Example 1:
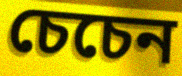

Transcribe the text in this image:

চেচেন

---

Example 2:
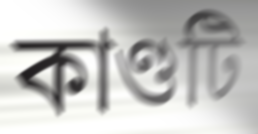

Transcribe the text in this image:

কাণ্ডটি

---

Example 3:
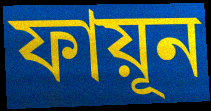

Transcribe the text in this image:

ফায়ূন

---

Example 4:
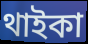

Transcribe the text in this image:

থাইকা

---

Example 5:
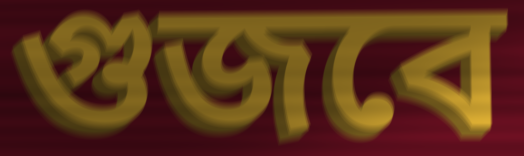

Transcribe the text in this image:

গুজবে